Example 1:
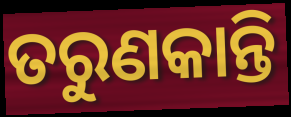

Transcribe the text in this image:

ତରୁଣକାନ୍ତି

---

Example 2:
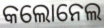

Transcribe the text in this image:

କଲୋନେଲ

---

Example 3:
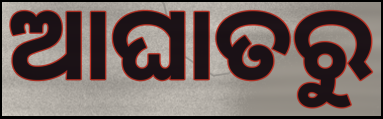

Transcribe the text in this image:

ଆଘାତରୁ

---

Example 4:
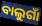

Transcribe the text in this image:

ବାଲୁଗାଁ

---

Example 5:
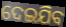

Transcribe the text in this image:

ଦେଇଯିବ